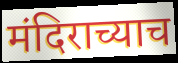
मंदिराच्याच